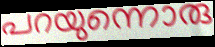
പറയുന്നൊരു